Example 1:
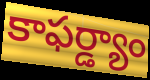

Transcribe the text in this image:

కాఫర్డ్యాం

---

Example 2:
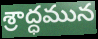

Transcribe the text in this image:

శ్రాద్ధమున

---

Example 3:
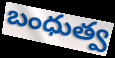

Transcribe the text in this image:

బంధుత్వ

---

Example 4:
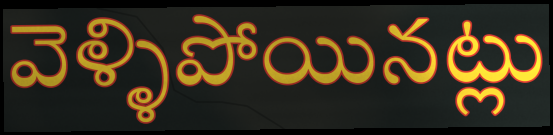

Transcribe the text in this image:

వెళ్ళిపోయినట్లు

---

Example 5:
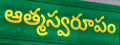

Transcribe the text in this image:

ఆత్మస్వరూపం